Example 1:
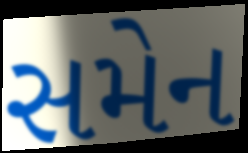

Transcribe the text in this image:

સમેન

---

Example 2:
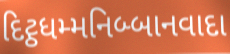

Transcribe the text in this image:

દિટ્ઠધમ્મનિબ્બાનવાદા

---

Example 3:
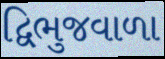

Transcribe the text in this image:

દ્વિભુજવાળા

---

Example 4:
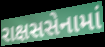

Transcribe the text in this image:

રાક્ષસસેનામાં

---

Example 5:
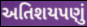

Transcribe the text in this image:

અતિશયપણું